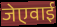
जेएवाई